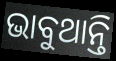
ଭାବୁଥାନ୍ତି